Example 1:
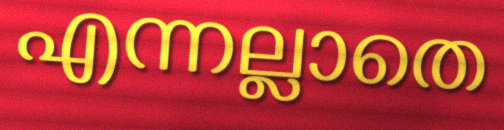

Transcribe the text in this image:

എന്നല്ലാതെ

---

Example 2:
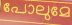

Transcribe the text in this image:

പോലുമേ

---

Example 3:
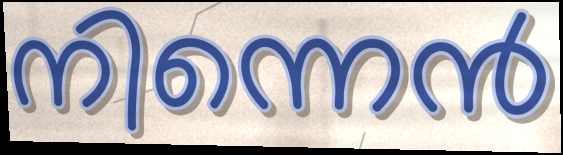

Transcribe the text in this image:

നിന്നെൻ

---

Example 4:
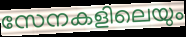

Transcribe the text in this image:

സേനകളിലെയും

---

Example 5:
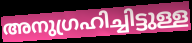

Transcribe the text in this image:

അനുഗ്രഹിച്ചിട്ടുള്ള